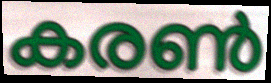
കരൺ